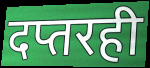
दप्तरही